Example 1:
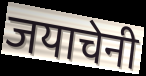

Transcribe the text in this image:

जयाचेनी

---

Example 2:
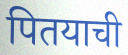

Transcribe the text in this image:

पितयाची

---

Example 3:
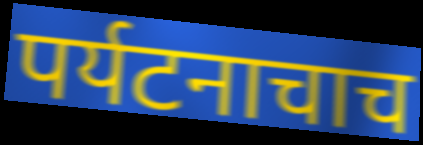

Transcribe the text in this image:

पर्यटनाचाच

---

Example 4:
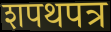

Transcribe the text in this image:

शपथपत्र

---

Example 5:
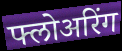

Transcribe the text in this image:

फ्लोअरिंग